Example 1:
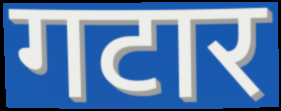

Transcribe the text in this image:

गटार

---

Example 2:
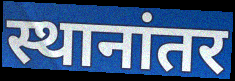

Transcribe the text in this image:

स्थानांतर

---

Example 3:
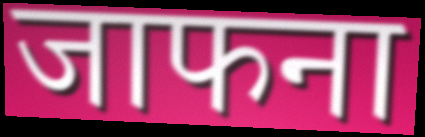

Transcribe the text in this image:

जाफना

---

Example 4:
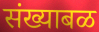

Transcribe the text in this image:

संख्याबळ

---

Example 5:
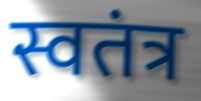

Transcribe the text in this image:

स्‍वतंत्र